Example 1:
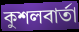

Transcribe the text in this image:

কুশলবার্তা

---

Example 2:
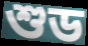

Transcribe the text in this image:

শুড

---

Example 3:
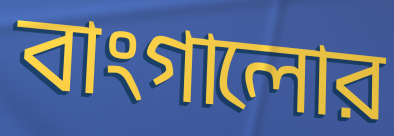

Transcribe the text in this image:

বাংগালোর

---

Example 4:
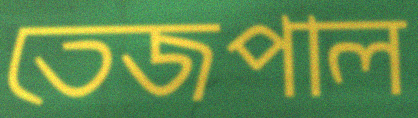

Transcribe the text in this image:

তেজপাল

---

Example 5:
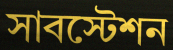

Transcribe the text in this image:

সাবস্টেশন